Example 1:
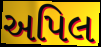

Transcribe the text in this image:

અપિલ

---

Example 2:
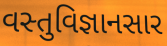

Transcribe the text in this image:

વસ્તુવિજ્ઞાનસાર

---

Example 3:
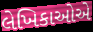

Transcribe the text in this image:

લેખિકાઓએ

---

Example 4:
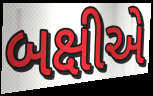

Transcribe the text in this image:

બક્ષીએ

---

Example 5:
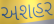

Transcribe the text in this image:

અશહર